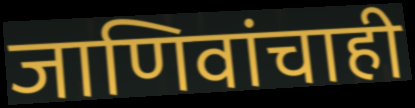
जाणिवांचाही